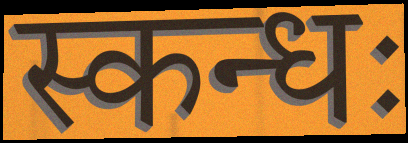
स्कन्धः